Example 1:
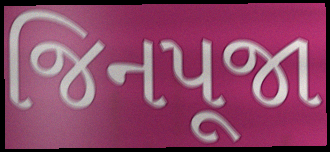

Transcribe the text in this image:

જિનપૂજા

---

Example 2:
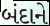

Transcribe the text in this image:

બંદાને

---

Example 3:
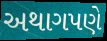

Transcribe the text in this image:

અથાગપણે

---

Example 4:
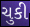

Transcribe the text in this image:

ચુકી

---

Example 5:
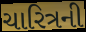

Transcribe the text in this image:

ચારિત્રની